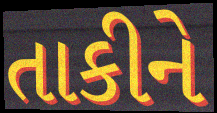
તાકીને